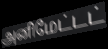
அனிமேட்டட்